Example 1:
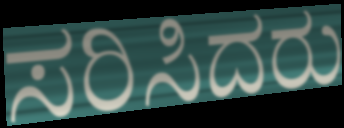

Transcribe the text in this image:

ಸರಿಸಿದರು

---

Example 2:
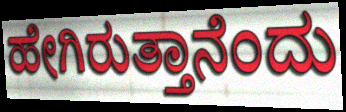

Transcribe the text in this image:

ಹೇಗಿರುತ್ತಾನೆಂದು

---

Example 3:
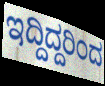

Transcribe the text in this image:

ಇದ್ದಿದ್ದರಿಂದ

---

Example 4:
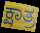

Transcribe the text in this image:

ಕ್ಷಾತ್ರ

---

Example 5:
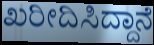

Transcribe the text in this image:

ಖರೀದಿಸಿದ್ದಾನೆ